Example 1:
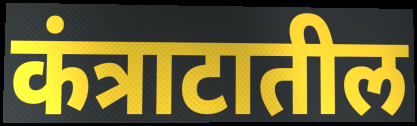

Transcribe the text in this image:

कंत्राटातील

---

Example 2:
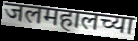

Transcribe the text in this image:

जलमहालच्या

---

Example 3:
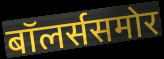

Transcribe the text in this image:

बॉलर्ससमोर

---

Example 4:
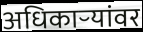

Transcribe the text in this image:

अधिकाऱ्यांवर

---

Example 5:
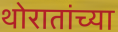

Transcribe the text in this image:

थोरातांच्या